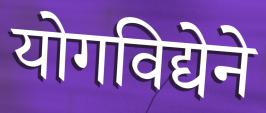
योगविद्येने